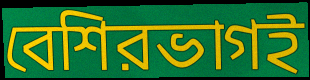
বেশিরভাগই